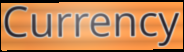
Currency